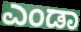
ಎಂಡಾ